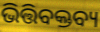
ଭିତ୍ତିବକ୍ତବ୍ୟ